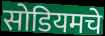
सोडियमचे